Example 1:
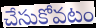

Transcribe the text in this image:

చేసుకోవటం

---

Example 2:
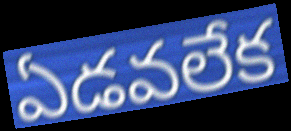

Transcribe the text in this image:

ఏడవలేక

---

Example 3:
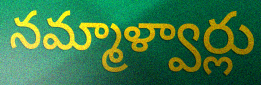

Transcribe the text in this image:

నమ్మాళ్వార్లు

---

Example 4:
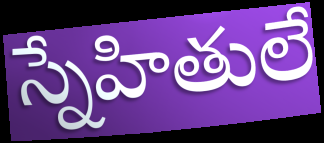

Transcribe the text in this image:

స్నేహితులే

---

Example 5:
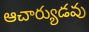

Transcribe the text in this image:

ఆచార్యుడవు